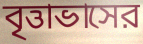
বৃত্তাভাসের